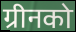
ग्रीनको